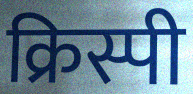
क्रिस्पी